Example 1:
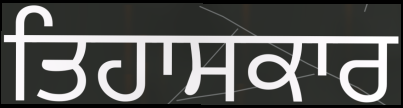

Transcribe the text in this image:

ਤਿਹਾਸਕਾਰ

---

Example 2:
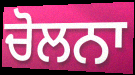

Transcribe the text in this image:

ਚੋਲਨਾ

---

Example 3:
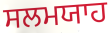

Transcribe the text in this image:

ਸਲਮਯਾਹ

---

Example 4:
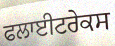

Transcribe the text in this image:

ਫਲਾਈਟਰੇਕਸ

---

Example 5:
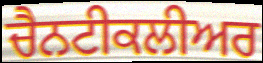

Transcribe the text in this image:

ਚੈਨਟੀਕਲੀਅਰ